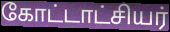
கோட்டாட்சியர்